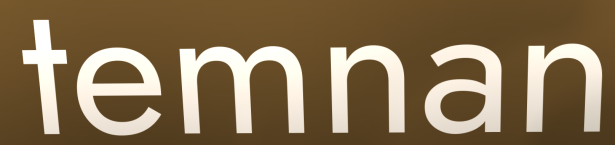
temnan